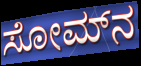
ಸೋಮ್‍ನ